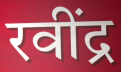
रवींद्र